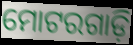
ମୋଟରଗାଡ଼ି